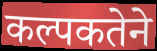
कल्पकतेने